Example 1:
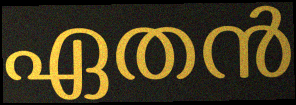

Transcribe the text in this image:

ഏതൻ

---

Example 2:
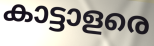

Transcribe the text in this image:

കാട്ടാളരെ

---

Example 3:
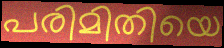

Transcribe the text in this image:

പരിമിതിയെ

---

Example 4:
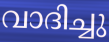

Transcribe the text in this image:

വാദിച്ചു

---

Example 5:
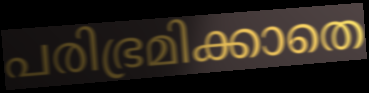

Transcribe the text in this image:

പരിഭ്രമിക്കാതെ